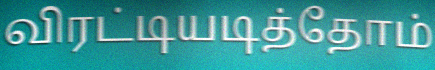
விரட்டியடித்தோம்